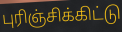
புரிஞ்சிக்கிட்டு